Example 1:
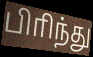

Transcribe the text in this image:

பிரிந்து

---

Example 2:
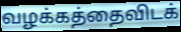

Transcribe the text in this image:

வழக்கத்தைவிடக்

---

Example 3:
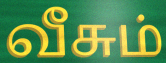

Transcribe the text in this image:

வீசும்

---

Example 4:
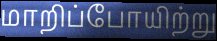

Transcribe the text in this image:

மாறிப்போயிற்று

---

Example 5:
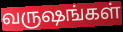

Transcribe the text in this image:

வருஷங்கள்